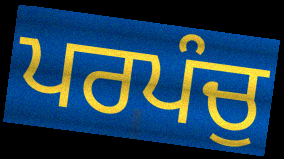
ਪਰਪੰਚੁ